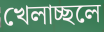
খেলাচ্ছলে